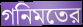
গনিমতের